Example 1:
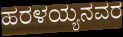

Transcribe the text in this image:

ಹರಳಯ್ಯನವರ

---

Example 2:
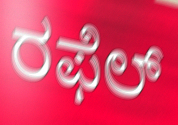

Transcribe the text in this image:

ರಫೆಲ್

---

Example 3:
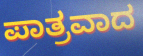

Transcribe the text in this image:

ಪಾತ್ರವಾದ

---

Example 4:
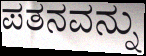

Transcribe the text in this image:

ಪತನವನ್ನು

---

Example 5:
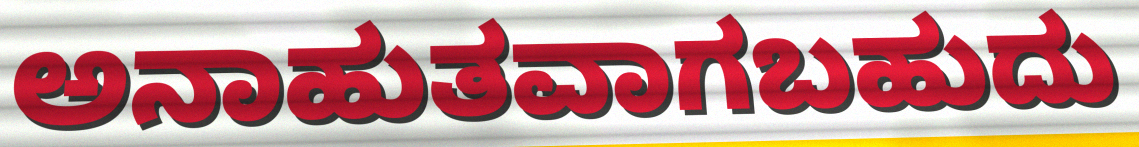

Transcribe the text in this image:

ಅನಾಹುತವಾಗಬಹುದು